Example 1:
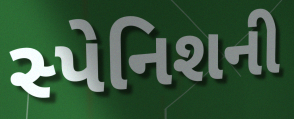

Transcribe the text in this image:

સ્પેનિશની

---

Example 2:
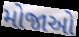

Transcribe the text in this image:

મોજાઓ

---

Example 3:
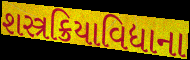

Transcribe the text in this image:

શસ્ત્રક્રિયાવિદ્યાના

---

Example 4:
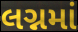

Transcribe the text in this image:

લગ્નમાં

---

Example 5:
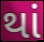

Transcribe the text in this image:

થાં